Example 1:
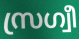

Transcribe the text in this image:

സ്രഗ്വീ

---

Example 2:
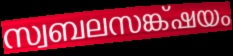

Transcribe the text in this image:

സ്വബലസങ്ക്ഷയം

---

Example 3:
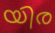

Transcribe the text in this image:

യിര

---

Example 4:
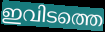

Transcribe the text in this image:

ഇവിടത്തെ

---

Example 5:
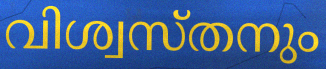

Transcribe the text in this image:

വിശ്വസ്തനും